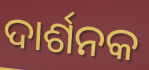
ଦାର୍ଶନକ